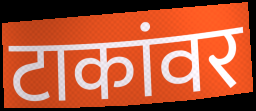
टाकांवर